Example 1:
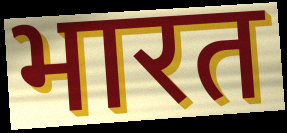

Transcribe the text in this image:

भारत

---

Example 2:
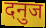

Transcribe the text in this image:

दनुज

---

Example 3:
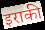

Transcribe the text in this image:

इराकी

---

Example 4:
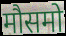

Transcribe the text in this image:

मौसमो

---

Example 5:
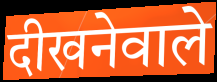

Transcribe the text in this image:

दीखनेवाले